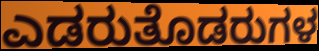
ಎಡರುತೊಡರುಗಳ